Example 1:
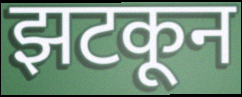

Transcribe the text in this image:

झटकून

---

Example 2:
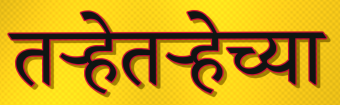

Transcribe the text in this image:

तर्‍हेतर्‍हेच्या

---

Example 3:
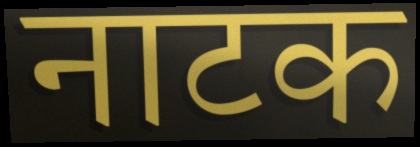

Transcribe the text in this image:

नाटक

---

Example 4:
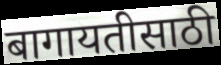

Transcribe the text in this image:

बागायतीसाठी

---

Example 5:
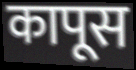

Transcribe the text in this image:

कापूस